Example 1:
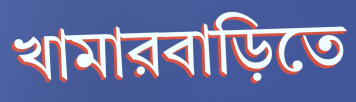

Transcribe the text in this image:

খামারবাড়িতে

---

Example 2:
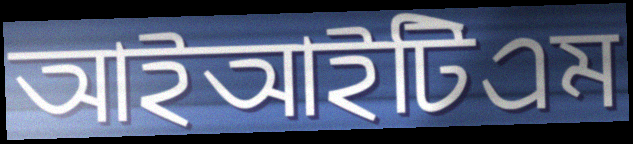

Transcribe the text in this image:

আইআইটিএম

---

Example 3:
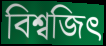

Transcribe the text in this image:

বিশ্বজিৎ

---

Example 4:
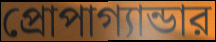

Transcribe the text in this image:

প্রোপাগ্যান্ডার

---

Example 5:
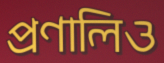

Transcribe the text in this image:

প্রণালিও